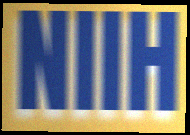
NIIH